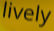
lively